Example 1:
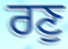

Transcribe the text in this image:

ਰਣੁ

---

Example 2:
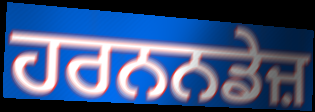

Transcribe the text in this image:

ਹਰਨਨਡੇਜ਼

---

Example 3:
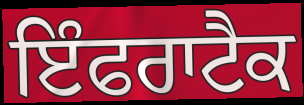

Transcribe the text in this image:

ਇੰਫਰਾਟੈਕ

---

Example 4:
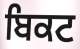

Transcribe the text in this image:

ਬਿਕਟ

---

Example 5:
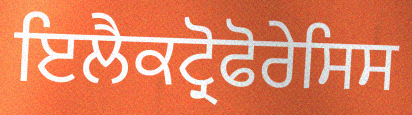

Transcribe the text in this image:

ਇਲੈਕਟ੍ਰੋਫੋਰੇਸਿਸ